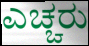
ಎಚ್ಚರು